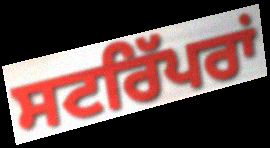
ਸਟਰਿੱਪਰਾਂ